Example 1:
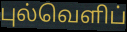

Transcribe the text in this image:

புல்வெளிப்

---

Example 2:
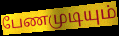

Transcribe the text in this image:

பேணமுடியும்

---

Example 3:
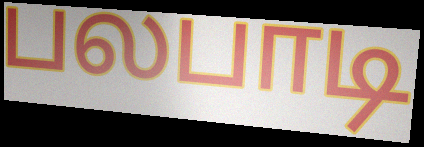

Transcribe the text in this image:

பலபாடி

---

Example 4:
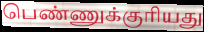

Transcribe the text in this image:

பெண்ணுக்குரியது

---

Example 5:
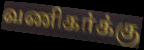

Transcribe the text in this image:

வணிகர்க்கு